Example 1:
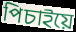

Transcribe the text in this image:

পিচাইয়ে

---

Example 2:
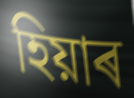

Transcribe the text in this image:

হিয়াৰ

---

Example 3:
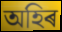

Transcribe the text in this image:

অহিৰ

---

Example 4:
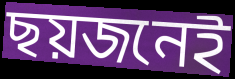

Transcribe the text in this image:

ছয়জনেই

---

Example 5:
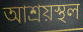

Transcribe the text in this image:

আশ্ৰয়স্থল